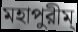
মহাপুরীম্